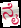
ನೈ